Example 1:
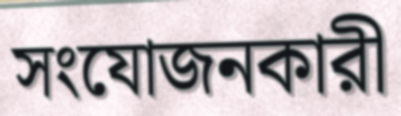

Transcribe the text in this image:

সংযোজনকারী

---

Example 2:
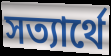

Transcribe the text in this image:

সত্যার্থে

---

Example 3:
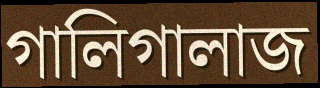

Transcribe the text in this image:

গালিগালাজ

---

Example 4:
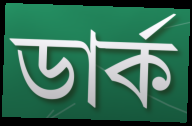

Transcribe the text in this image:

ডার্ক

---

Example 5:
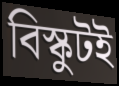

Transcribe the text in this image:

বিস্কুটই